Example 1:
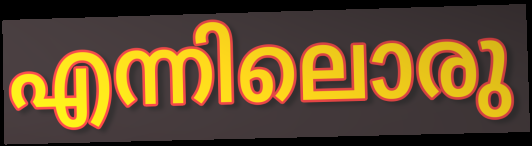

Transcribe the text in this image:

എന്നിലൊരു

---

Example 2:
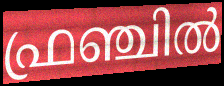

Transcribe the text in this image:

ഫ്രഞ്ചിൽ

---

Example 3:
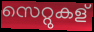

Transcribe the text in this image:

സെറ്റുകള്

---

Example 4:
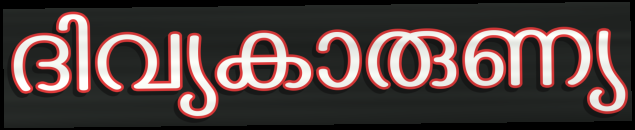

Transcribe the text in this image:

ദിവ്യകാരുണ്യ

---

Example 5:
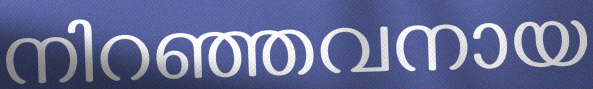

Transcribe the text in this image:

നിറഞ്ഞവനായ